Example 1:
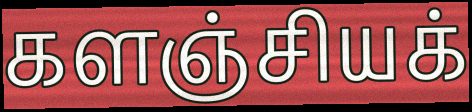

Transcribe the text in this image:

களஞ்சியக்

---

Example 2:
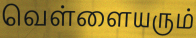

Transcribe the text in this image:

வெள்ளையரும்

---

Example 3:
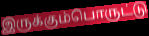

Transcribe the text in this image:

இருக்கும்பொருட்டு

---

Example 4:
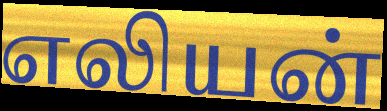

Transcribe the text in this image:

எலியன்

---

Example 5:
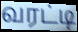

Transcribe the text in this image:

வரட்டி